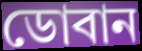
ডোবান